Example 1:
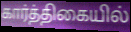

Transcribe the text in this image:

கார்த்திகையில்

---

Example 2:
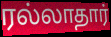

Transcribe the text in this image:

ரல்லாதார்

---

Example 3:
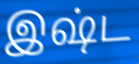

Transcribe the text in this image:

இஷ்ட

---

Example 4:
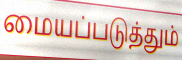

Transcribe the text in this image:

மையப்படுத்தும்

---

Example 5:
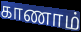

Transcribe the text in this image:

காணாம்